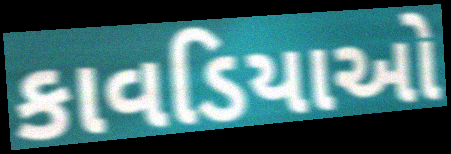
કાવડિયાઓ